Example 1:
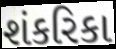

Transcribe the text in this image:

શંકરિકા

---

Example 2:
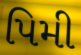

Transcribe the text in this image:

પિમી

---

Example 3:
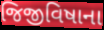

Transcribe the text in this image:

જિજીવિષાના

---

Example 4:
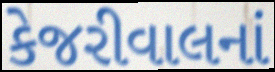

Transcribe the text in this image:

કેજરીવાલનાં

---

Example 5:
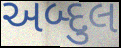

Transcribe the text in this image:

અબ્દુલ